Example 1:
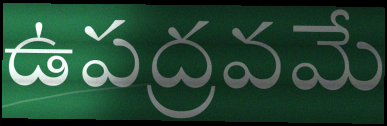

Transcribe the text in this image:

ఉపద్రవమే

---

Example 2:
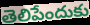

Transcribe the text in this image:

తెలిపేందుకు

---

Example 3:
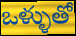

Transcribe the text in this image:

ఒళ్ళుతో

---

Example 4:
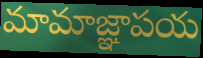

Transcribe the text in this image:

మామాజ్ఞాపయ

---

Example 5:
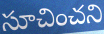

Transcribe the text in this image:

సూచించని